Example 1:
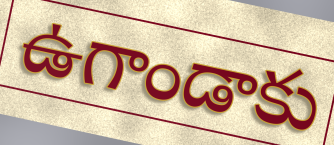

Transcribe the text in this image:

ఉగాండాకు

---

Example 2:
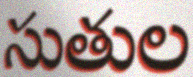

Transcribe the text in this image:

సుతుల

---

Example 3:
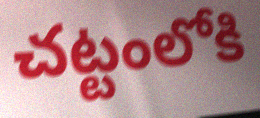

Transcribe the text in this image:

చట్టంలోకి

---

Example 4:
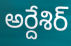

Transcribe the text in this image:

అర్దేశిర్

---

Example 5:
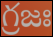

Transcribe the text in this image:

గ్రజః